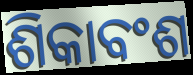
ଶିକାବଂଶ